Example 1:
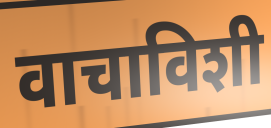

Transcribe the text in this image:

वाचाविशी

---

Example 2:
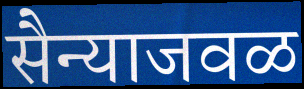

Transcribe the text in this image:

सैन्याजवळ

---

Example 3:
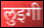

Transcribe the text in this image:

लुइगी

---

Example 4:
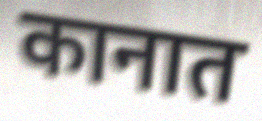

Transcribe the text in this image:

कानात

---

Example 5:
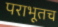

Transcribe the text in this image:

पराभूतच